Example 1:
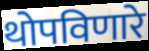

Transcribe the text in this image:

थोपविणारे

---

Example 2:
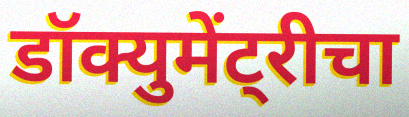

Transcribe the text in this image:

डॉक्युमेंट्रीचा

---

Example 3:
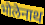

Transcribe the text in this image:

भोलेनाथ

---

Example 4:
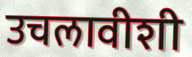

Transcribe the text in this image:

उचलावीशी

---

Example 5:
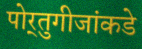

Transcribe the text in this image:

पोर्तुगीजांकडे